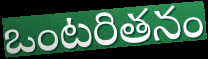
ఒంటరితనం